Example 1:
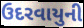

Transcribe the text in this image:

ઉદરવાયુની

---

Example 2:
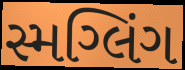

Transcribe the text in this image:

સ્મગ્લિંગ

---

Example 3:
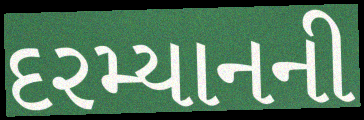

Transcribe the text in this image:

દરમ્યાનની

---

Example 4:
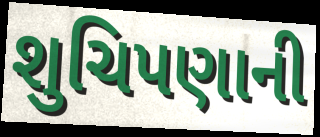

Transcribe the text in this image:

શુચિપણાની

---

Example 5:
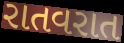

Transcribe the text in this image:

રાતવરાત